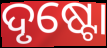
ଦୃଷ୍ଟୋ